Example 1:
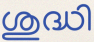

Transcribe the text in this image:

ശുദ്ധി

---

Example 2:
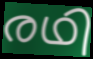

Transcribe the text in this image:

രഥി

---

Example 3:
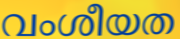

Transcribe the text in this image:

വംശീയത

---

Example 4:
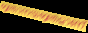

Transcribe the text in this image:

ജ്ഞാനയജ്ഞമാണ്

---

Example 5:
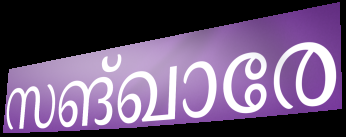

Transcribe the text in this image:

സങ്ഖാരേ